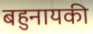
बहुनायकी